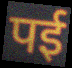
पई